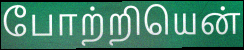
போற்றியென்